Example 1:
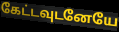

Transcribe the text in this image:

கேட்டவுடனேயே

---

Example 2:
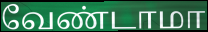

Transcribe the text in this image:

வேண்டாமா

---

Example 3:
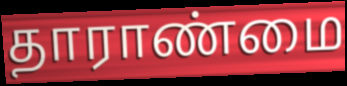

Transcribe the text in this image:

தாராண்மை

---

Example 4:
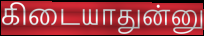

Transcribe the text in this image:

கிடையாதுன்னு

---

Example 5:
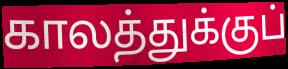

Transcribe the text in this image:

காலத்துக்குப்